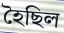
হৈছিল